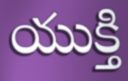
యుక్తి